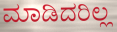
ಮಾಡಿದರಿಲ್ಲ